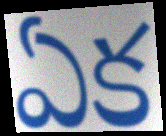
ఏక